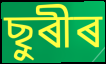
ছুৰীৰ